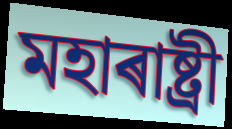
মহাৰাষ্ট্ৰী